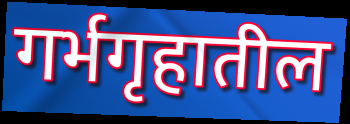
गर्भगृहातील